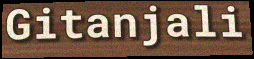
Gitanjali